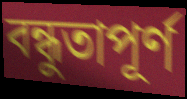
বন্ধুতাপূর্ণ